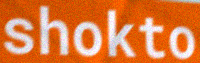
shokto